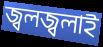
জ্বলজ্বলাই